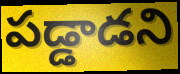
పడ్డాడని